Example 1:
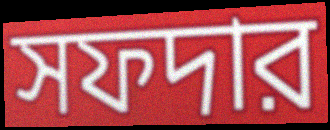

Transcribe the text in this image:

সফদার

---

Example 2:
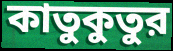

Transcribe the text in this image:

কাতুকুতুর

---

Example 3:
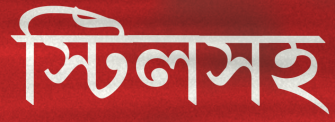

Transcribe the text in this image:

স্টিলসহ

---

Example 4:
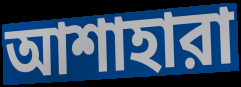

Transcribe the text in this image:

আশাহারা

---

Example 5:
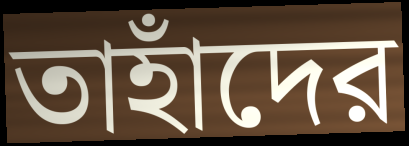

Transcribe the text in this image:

তাহাঁদের